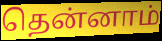
தென்னாம்